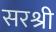
सरश्री